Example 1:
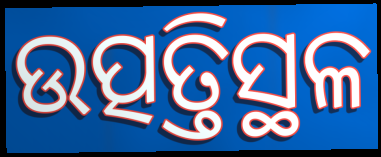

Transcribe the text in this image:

ଉତ୍ପତ୍ତିସ୍ଥଳ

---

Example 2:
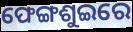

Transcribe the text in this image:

ଫେଙ୍ଗଶୁଇରେ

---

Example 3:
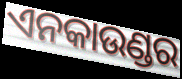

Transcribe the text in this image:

ଏନକାଉଣ୍ଡର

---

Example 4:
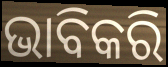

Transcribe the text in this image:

ଭାବିକରି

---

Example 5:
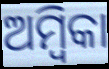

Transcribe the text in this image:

ଅମ୍ବିକା